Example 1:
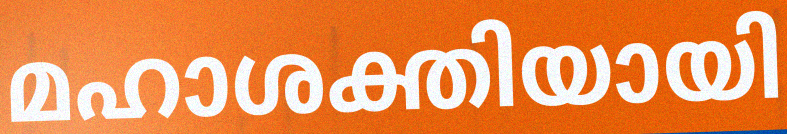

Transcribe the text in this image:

മഹാശക്തിയായി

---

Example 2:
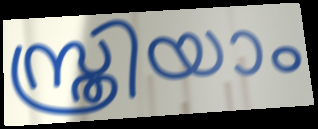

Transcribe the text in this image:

സ്ത്രിയാം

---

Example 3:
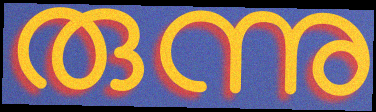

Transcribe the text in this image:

രുന്നു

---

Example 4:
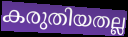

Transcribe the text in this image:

കരുതിയതല്ല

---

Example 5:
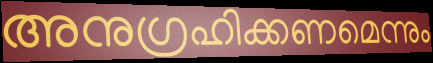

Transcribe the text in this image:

അനുഗ്രഹിക്കണമെന്നും